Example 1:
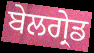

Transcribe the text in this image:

ਬੇਲਗ੍ਰੇਡ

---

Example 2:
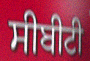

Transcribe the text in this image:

ਸੀਬੀਟੀ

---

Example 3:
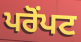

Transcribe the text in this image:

ਪਰੋਂਪਟ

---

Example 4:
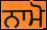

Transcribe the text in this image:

ਨਾਮੋ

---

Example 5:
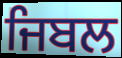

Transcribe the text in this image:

ਜਿਬਲ